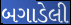
બગાડેલી